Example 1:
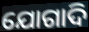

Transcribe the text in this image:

ଯୋଗାଦି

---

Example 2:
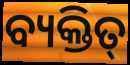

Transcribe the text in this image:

ବ୍ୟକ୍ତିତ୍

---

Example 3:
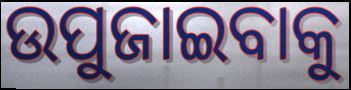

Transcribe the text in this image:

ଉପୁଜାଇବାକୁ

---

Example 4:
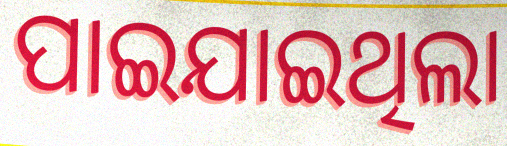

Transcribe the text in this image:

ପାଇଯାଇଥିଲା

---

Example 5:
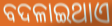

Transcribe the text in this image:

ବଦଳାଇଥାଏ